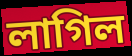
লাগিল